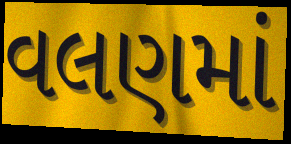
વલણમાં